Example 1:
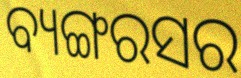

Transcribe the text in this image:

ବ୍ୟଙ୍ଗରସର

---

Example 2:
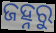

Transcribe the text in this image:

ଜହ୍ନରୁ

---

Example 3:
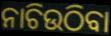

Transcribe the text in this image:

ନାଚିଉଠିବା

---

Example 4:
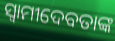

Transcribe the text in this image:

ସ୍ୱାମୀଦେବତାଙ୍କ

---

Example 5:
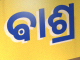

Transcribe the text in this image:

ଵାଶ୍ର